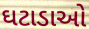
ઘટાડાઓ